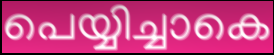
പെയ്യിച്ചാകെ